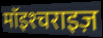
मॉइश्चराइज़